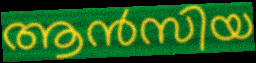
ആൻസിയ